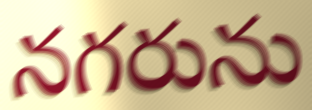
నగరును